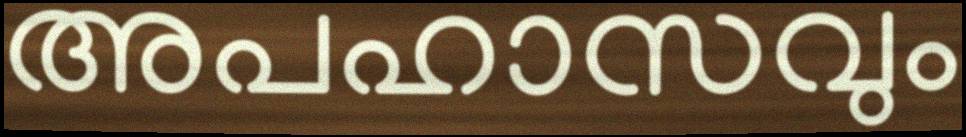
അപഹാസവും